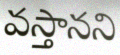
వస్తానని